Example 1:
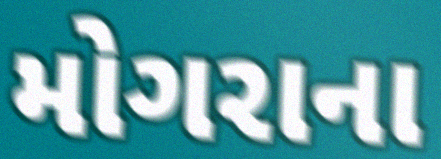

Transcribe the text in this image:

મોગરાના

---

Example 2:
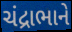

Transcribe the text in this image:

ચંદ્રાભાને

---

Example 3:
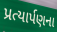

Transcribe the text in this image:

પ્રત્યાર્પણના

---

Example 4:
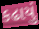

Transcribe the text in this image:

કઢાયું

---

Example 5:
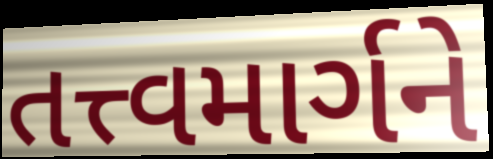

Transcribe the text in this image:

તત્ત્વમાર્ગને